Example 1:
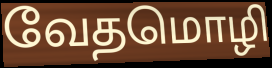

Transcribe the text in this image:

வேதமொழி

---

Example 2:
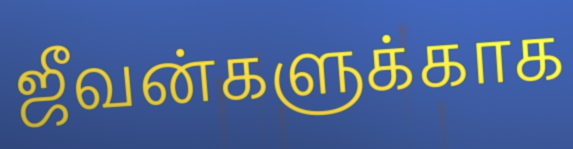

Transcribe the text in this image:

ஜீவன்களுக்காக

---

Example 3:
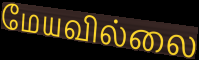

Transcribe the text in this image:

மேயவில்லை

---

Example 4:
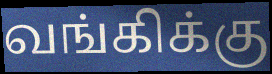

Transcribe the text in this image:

வங்கிக்கு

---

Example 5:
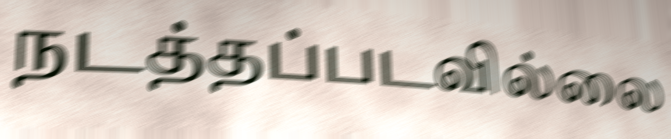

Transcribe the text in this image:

நடத்தப்படவில்லை